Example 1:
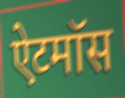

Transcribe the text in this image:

ऐटमॉस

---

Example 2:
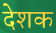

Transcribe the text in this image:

देशक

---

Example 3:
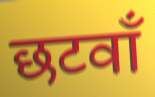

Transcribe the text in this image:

छटवाँ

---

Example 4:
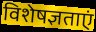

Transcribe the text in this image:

विशेषज्ञताएं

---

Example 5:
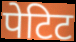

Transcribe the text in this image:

पेटिट